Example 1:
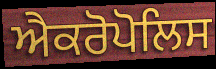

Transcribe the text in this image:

ਐਕਰੋਪੋਲਿਸ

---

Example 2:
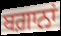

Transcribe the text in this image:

ਬਗ਼ਾਨਾਂ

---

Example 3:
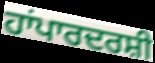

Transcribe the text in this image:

ਹਾਂਪਾਰਦਰਸ਼ੀ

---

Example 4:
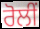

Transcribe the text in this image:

ਰੋਲੀਂ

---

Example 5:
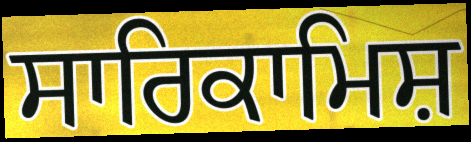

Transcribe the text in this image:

ਸਾਰਿਕਾਮਿਸ਼